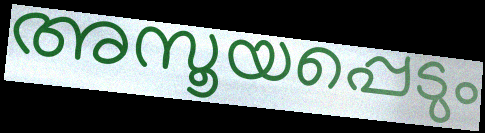
അസൂയപ്പെടും